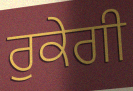
ਰੁਕੇਗੀ